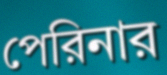
পেরিনার